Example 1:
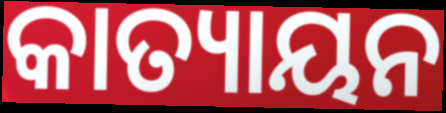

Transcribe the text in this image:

କାତ୍ୟାୟନ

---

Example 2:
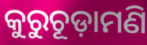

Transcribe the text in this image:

କୁରୁଚୂଡ଼ାମଣି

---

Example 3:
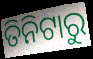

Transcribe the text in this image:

ତିନିଟାରୁ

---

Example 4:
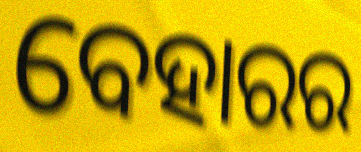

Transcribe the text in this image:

ବେହାରର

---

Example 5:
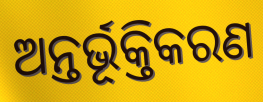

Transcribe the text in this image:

ଅନ୍ତର୍ଭୂକ୍ତିକରଣ